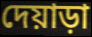
দেয়াড়া